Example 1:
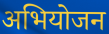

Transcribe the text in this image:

अभियोजन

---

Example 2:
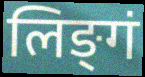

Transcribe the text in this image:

लिङ्गं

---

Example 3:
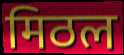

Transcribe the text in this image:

मिठल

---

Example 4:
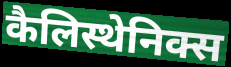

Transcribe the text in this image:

कैलिस्थेनिक्स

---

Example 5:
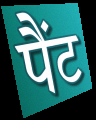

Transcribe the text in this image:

पैंट